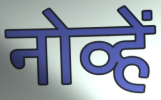
नोव्हें